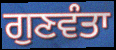
ਗੁਣਵੰਤਾ